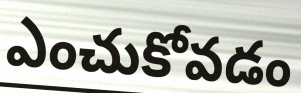
ఎంచుకోవడం